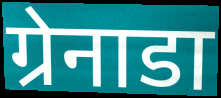
ग्रेनाडा